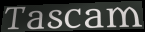
Tascam